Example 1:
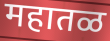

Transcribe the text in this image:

महातळ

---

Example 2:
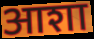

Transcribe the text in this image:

आशा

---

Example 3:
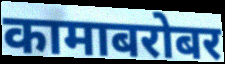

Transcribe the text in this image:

कामाबरोबर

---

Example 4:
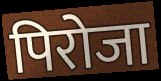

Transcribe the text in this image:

पिरोजा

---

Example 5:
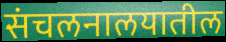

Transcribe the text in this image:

संचलनालयातील